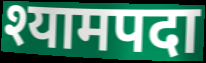
श्यामपदा